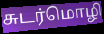
சுடர்மொழி